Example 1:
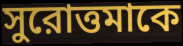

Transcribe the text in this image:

সুরোত্তমাকে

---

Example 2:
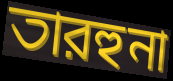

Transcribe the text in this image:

তারহুনা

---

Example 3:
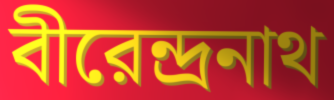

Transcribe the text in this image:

বীরেন্দ্রনাথ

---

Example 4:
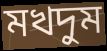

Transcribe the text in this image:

মখদুম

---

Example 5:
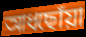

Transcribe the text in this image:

আধছোঁয়া